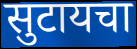
सुटायचा